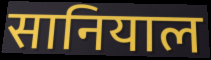
सानियाल